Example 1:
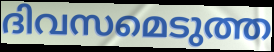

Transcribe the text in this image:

ദിവസമെടുത്ത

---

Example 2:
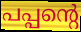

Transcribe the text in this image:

പപ്പന്റെ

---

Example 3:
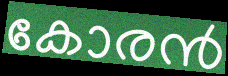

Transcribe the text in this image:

കോരൻ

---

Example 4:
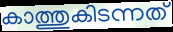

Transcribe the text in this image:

കാത്തുകിടന്നത്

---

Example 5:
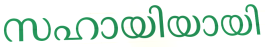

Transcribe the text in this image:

സഹായിയായി